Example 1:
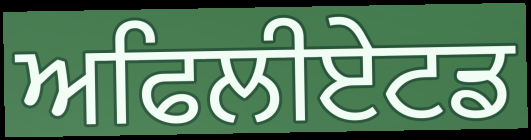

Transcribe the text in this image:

ਅਫਿਲੀਏਟਡ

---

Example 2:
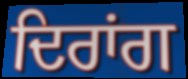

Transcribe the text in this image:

ਦਿਰਾਂਗ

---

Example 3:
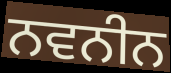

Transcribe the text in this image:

ਨਵਨੀਨ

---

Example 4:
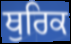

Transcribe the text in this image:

ਥੁਰਿਕ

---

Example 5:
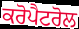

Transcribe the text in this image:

ਕਰੋਪੈਟਰੋਲ